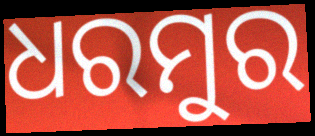
ଧରମୁର